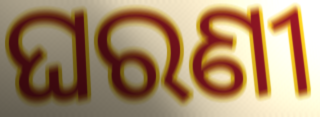
ଘରଣୀ